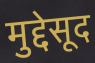
मुद्देसूद